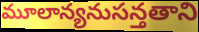
మూలాన్యనుసన్తతాని